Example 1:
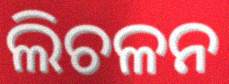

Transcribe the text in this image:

ଲିଚଳନ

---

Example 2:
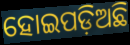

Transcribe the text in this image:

ହୋଇପଡ଼ିଅଛି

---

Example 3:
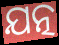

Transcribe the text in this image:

ଯତ୍ନ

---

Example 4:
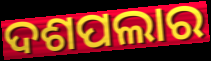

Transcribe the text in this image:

ଦଶପଲାର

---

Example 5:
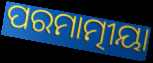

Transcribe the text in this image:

ପରମାତ୍ମୀୟା